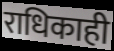
राधिकाही